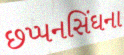
છપ્પનસિંઘના